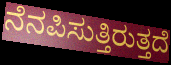
ನೆನಪಿಸುತ್ತಿರುತ್ತದೆ